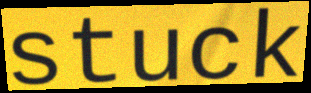
stuck